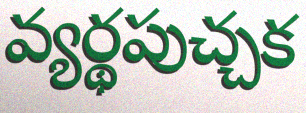
వ్యర్థపుచ్చక